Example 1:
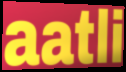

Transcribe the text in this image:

aatli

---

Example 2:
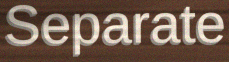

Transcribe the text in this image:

Separate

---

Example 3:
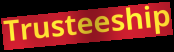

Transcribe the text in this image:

Trusteeship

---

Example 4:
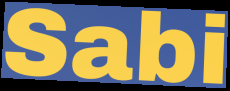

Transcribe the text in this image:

Sabi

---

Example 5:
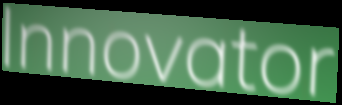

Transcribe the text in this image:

Innovator